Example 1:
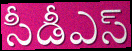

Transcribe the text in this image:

సీడీఎస్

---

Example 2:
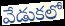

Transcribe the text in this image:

వేడుకలో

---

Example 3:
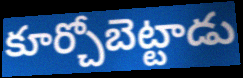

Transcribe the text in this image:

కూర్చోబెట్టాడు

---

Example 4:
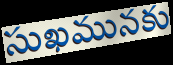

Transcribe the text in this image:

సుఖమునకు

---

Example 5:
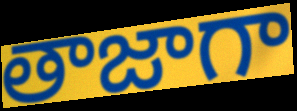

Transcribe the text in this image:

తాజాగా